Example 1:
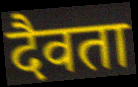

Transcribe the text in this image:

दैवता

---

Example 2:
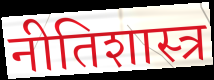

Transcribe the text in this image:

नीतिशास्त्र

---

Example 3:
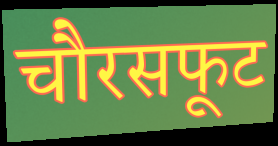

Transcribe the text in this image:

चौरसफूट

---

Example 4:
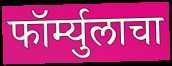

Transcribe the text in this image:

फॉर्म्युलाचा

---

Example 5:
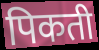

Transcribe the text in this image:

पिकती